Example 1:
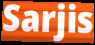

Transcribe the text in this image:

Sarjis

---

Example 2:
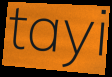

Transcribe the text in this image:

tayi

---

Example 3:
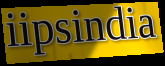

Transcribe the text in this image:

iipsindia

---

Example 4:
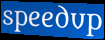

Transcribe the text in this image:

speedup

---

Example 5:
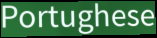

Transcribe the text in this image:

Portughese